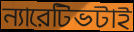
ন্যারেটিভটাই